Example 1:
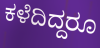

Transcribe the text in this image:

ಕಳೆದಿದ್ದರೂ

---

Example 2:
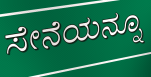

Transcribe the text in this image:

ಸೇನೆಯನ್ನೂ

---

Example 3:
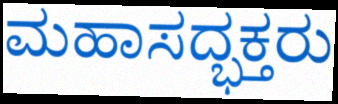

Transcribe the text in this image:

ಮಹಾಸದ್ಭಕ್ತರು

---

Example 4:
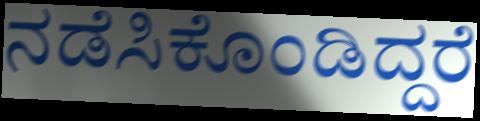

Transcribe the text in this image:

ನಡೆಸಿಕೊಂಡಿದ್ದರೆ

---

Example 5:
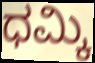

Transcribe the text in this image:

ಧಮ್ಕಿ